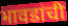
भावडांची